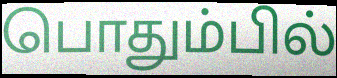
பொதும்பில்